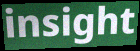
insight